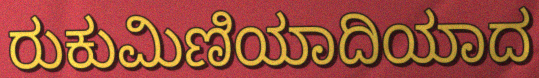
ರುಕುಮಿಣಿಯಾದಿಯಾದ